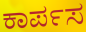
ಕಾರ್ಪಸ